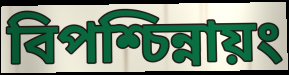
বিপশ্চিন্নায়ং